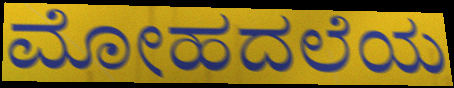
ಮೋಹದಲೆಯ